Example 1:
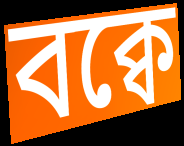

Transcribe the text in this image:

বক্বে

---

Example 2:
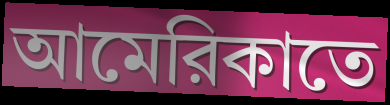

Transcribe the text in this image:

আমেরিকাতে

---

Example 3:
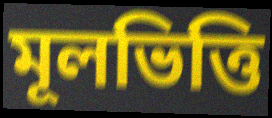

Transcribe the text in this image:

মূলভিত্তি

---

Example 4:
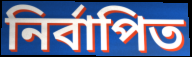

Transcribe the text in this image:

নির্বাপিত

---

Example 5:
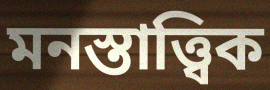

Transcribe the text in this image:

মনস্তাত্ত্বিক